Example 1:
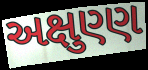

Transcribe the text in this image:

અક્ષુણ્ણ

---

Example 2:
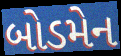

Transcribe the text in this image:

બોડમેન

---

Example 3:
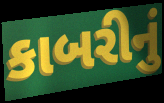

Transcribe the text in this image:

કાબરીનું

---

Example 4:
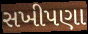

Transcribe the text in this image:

સખીપણા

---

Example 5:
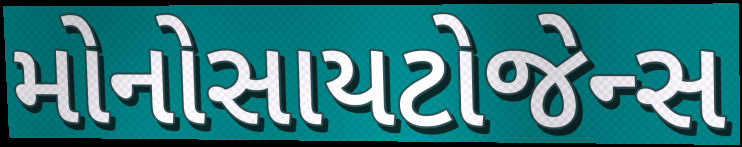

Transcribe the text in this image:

મોનોસાયટોજેન્સ